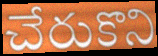
చేరుకొని